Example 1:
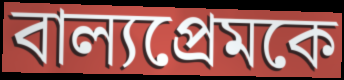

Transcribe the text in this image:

বাল্যপ্রেমকে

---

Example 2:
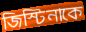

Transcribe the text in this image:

জিস্টিনাকে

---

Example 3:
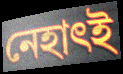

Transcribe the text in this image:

নেহাৎই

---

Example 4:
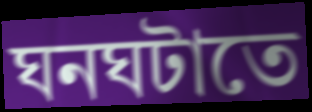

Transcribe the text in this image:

ঘনঘটাতে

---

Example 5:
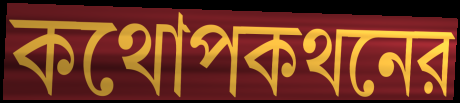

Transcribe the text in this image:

কথোপকথনের